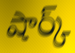
షార్క్